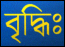
বৃদ্ধিঃ